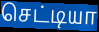
செட்டியா